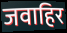
जवाहिर